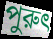
পুরুৎ